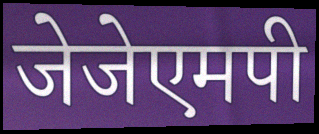
जेजेएमपी